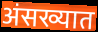
अंसख्यात